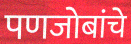
पणजोबांचे